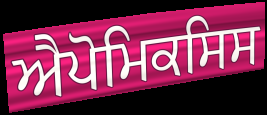
ਐਪੋਮਿਕਸਿਸ